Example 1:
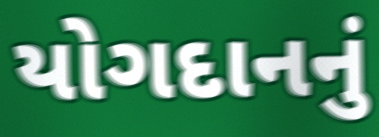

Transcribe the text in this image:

યોગદાનનું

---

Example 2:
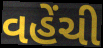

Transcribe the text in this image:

વહેંચી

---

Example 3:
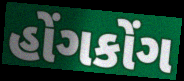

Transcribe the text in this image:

હોંગકોંગ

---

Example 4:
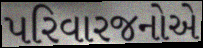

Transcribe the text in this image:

પરિવારજનોએ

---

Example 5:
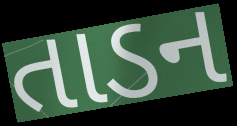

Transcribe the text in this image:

તાડન